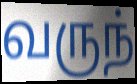
வருந்